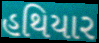
હથિયાર